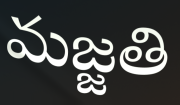
మజ్జతి